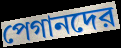
পেগানদের